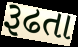
રૂઢતા